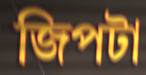
জিপটা